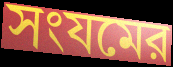
সংযমের